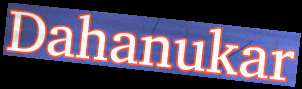
Dahanukar